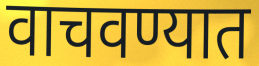
वाचवण्यात